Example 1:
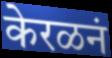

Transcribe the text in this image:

केरळनं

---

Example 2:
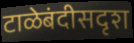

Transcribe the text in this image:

टाळेबंदीसदृश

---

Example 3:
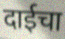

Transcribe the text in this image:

दाईचा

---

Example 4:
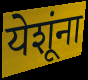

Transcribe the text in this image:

येशूंना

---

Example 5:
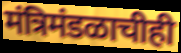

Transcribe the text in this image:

मंत्रिमंडळाचीही